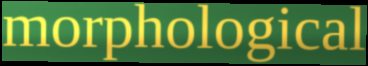
morphological